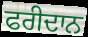
ਫਰੀਦਾਨ